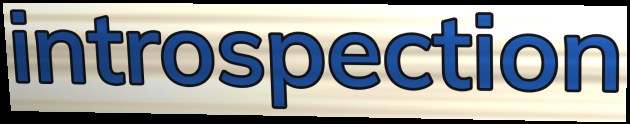
introspection